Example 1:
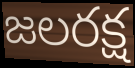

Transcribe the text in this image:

జలరక్ష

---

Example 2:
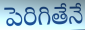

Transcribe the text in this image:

పెరిగితేనే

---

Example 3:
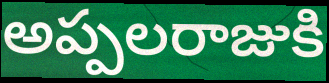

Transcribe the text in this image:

అప్పలరాజుకి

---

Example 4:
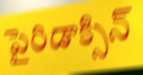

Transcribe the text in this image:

పైరిడాక్సిన్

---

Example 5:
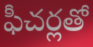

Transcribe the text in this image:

ఫీచర్లతో